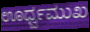
ಊರ್ಧ್ವಮುಖ